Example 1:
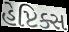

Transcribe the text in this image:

હેપ્ટિક્સ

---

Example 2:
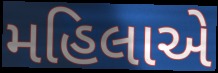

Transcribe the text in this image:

મહિલાએ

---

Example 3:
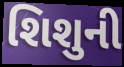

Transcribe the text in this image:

શિશુની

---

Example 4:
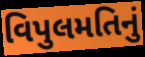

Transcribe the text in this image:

વિપુલમતિનું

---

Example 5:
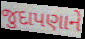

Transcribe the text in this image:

જુદાપણાને